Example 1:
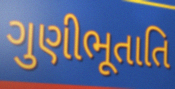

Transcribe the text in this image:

ગુણીભૂતાતિ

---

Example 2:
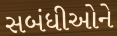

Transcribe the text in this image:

સબંધીઓને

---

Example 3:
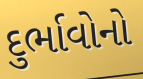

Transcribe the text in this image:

દુર્ભાવોનો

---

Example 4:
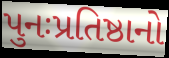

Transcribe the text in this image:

પુનઃપ્રતિષ્ઠાનો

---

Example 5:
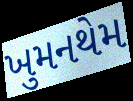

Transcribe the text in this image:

ખુમનથેમ